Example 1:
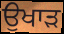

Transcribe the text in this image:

ਉਖਾੜ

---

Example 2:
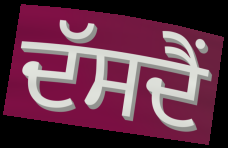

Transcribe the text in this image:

ਦੱਸਦੈਂ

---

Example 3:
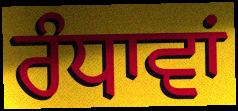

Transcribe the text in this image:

ਰੰਧਾਵਾਂ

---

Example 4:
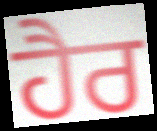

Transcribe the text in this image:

ਹੈਰ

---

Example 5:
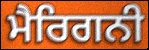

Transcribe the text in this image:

ਮੈਰਿਗਨੀ